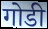
गोडी